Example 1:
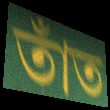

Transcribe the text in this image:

তাঁত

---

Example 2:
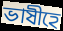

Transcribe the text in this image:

ভাষীহে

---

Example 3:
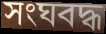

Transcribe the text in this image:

সংঘবদ্ধ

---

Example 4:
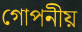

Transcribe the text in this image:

গোপনীয়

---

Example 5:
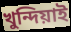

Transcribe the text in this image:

খুন্দিয়াই